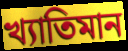
খ্যাতিমান